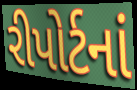
રીપોર્ટનાં